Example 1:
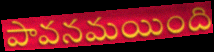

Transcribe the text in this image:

పావనమయింది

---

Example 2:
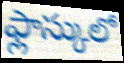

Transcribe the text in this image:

ఫ్లాస్కులో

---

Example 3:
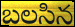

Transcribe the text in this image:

బలసిన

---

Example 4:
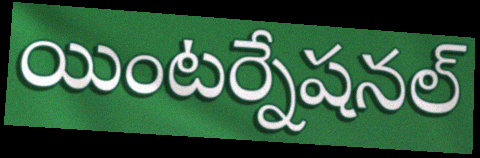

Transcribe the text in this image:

యింటర్నేషనల్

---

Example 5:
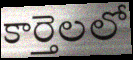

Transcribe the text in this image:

కార్తెలలో